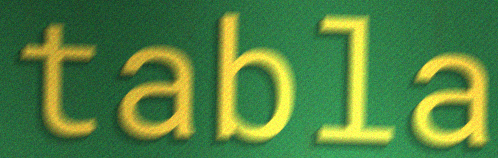
tabla